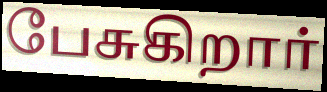
பேசுகிறார்